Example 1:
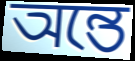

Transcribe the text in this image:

অন্তে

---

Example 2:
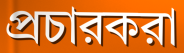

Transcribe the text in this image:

প্রচারকরা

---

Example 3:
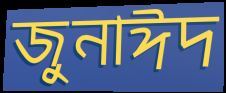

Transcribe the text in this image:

জুনাঈদ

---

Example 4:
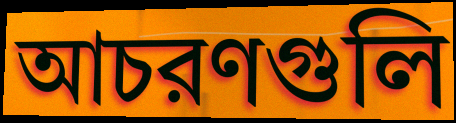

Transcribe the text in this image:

আচরণগুলি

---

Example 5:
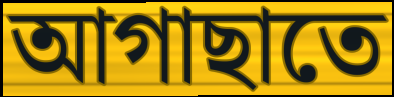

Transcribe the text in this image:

আগাছাতে